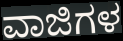
ವಾಜಿಗಳ